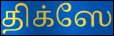
திக்ஸே